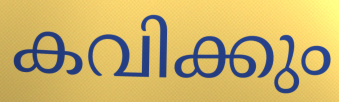
കവിക്കും